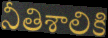
నీతిశాలికి